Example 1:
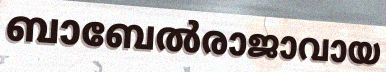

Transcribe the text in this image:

ബാബേൽരാജാവായ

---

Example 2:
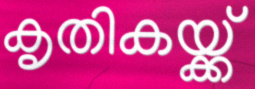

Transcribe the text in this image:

കൃതികയ്ക്ക്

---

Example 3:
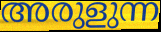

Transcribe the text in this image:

അരുളുന്ന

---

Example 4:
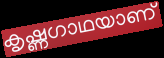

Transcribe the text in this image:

കൃഷ്ണഗാഥയാണ്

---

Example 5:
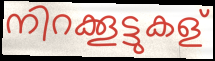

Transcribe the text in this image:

നിറക്കൂട്ടുകള്